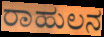
ರಾಹುಲನ